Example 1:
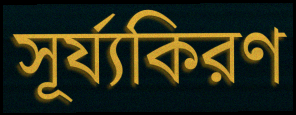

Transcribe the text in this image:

সূর্য্যকিরণ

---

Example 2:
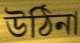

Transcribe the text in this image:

উঠিনা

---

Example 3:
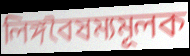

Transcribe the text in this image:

লিঙ্গবৈষম্যমূলক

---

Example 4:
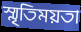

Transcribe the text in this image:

স্মৃতিময়তা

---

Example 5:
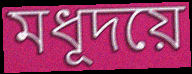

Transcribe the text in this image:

মধূদয়ে